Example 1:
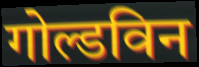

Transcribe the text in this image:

गोल्डविन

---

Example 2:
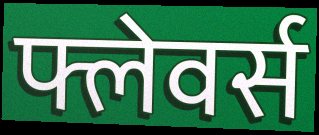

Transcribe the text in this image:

फ्लेवर्स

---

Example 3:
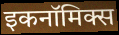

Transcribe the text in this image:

इकनॉमिक्स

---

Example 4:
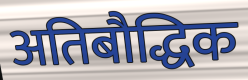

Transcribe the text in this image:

अतिबौद्धिक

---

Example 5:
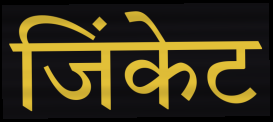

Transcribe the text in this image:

जिंकेट